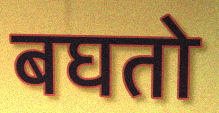
बघतो